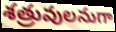
శత్రువులనుగా